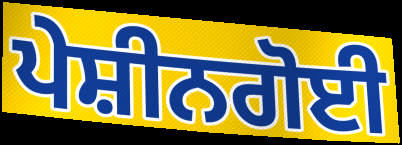
ਪੇਸ਼ੀਨਗੋਈ